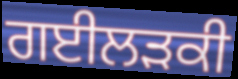
ਗਈਲੜਕੀ